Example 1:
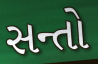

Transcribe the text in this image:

સન્તો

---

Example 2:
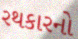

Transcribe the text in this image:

રથકારનો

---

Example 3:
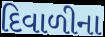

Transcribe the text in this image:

દિવાળીના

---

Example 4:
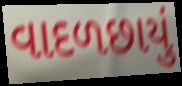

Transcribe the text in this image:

વાદળછાયું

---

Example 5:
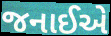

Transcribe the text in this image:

જનાઈએ